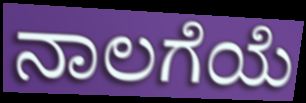
ನಾಲಗೆಯೆ